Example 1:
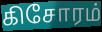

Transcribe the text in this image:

கிசோரம்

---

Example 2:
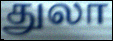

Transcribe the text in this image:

துலா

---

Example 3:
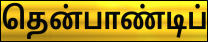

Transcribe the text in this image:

தென்பாண்டிப்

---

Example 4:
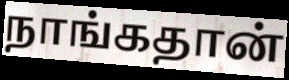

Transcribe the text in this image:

நாங்கதான்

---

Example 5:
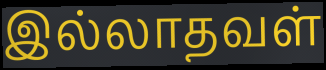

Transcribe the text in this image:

இல்லாதவள்